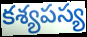
కశ్యపస్య